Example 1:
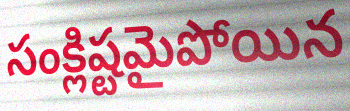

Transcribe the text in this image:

సంక్లిష్టమైపోయిన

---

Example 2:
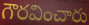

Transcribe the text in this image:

గౌరవించారు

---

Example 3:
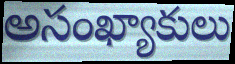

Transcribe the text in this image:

అసంఖ్యాకులు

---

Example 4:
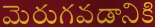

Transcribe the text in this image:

మెరుగవడానికి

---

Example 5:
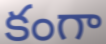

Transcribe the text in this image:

కంగా